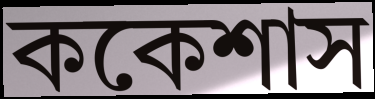
ককেশাস